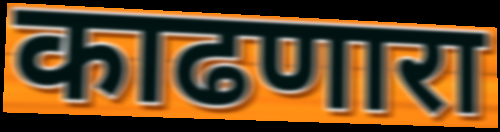
काढणारा